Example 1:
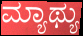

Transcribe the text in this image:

ಮ್ಯಾಥ್ಯು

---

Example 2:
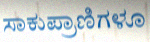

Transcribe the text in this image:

ಸಾಕುಪ್ರಾಣಿಗಳೂ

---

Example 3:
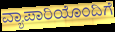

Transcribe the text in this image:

ವ್ಯಾಪಾರಿಯೊಂದಿಗೆ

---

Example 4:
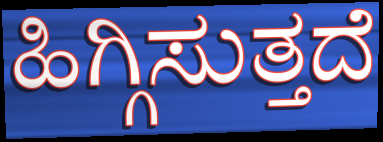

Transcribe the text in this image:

ಹಿಗ್ಗಿಸುತ್ತದೆ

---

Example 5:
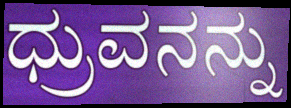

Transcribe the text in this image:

ಧ್ರುವನನ್ನು